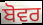
ਬੋਵਰ